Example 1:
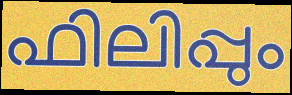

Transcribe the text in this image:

ഫിലിപ്പും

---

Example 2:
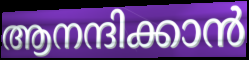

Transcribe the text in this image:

ആനന്ദിക്കാൻ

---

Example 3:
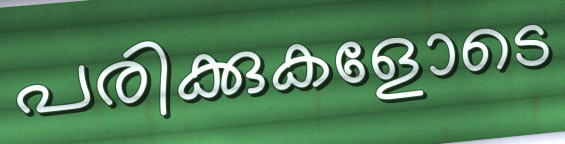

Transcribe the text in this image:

പരിക്കുകളോടെ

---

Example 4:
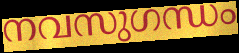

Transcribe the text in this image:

നവസുഗന്ധം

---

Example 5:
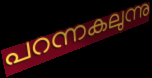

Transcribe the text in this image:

പറന്നകലുന്നു